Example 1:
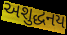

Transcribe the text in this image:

અશુદ્ધનય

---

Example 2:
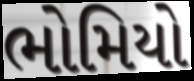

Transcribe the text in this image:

ભોમિયો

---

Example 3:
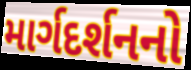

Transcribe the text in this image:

માર્ગદર્શનનો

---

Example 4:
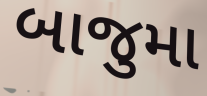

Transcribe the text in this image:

બાજુમા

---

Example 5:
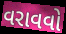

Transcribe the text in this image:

વરાવવો